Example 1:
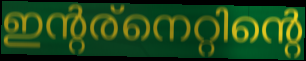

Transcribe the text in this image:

ഇന്റര്നെറ്റിന്റെ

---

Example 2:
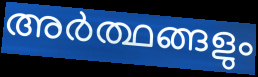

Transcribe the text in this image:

അർത്ഥങ്ങളും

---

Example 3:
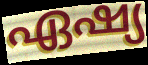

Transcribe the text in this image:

ഏഷ്യ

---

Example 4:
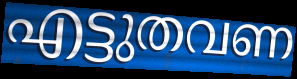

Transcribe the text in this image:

എട്ടുതവണ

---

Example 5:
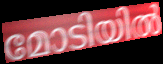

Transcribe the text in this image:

മോടിയിൽ